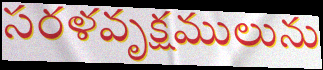
సరళవృక్షములును